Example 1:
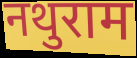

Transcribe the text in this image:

नथुराम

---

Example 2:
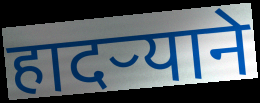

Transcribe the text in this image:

हादऱ्याने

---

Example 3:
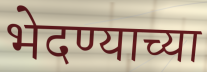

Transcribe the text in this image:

भेदण्याच्या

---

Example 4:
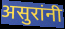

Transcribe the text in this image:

असुरांनी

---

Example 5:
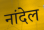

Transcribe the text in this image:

नांदेल